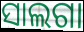
ସାଲଗା